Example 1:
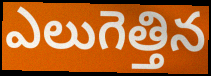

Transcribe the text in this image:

ఎలుగెత్తిన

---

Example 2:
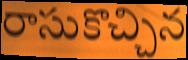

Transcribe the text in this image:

రాసుకొచ్చిన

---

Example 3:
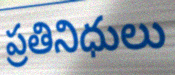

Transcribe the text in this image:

ప్రతినిధులు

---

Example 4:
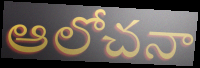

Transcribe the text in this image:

ఆలోచనా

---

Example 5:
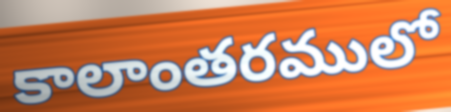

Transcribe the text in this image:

కాలాంతరములో